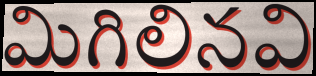
మిగిలినవి